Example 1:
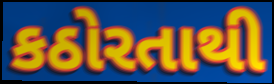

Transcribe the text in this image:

કઠોરતાથી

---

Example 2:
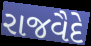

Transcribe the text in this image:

રાજવૈદે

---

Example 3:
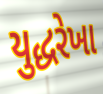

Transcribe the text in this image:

યુદ્ધરેખા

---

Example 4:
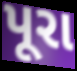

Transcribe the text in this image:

પૂરા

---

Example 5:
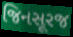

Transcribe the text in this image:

જિનસૂરજ